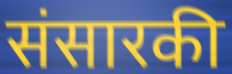
संसारकी